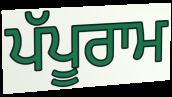
ਪੱਪੂਰਾਮ